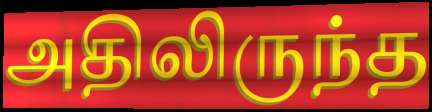
அதிலிருந்த